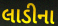
લાડીના